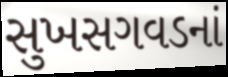
સુખસગવડનાં